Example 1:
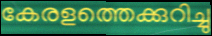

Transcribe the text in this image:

കേരളത്തെക്കുറിച്ചു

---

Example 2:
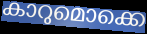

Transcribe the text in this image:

കാറുമൊക്കെ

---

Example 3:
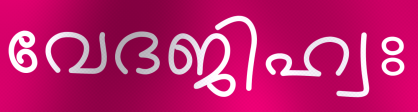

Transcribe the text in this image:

വേദജിഹ്വഃ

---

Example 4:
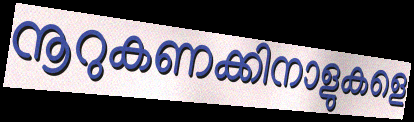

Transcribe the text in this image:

നൂറുകണക്കിനാളുകളെ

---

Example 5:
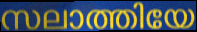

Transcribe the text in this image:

സലാത്തിയേ